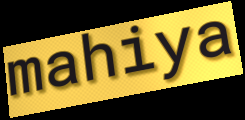
mahiya